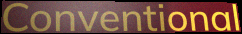
Conventional